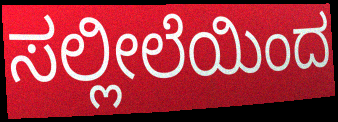
ಸಲ್ಲೀಲೆಯಿಂದ